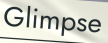
Glimpse